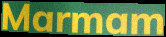
Marmam